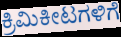
ಕ್ರಿಮಿಕೀಟಗಳಿಗೆ